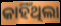
କାହିଁଥିଲା